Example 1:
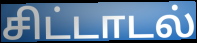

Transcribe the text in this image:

சிட்டாடல்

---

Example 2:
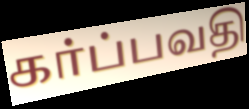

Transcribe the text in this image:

கர்ப்பவதி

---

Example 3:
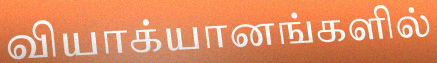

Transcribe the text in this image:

வியாக்யானங்களில்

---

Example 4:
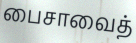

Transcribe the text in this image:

பைசாவைத்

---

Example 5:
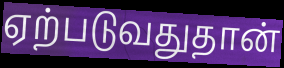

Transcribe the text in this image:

ஏற்படுவதுதான்